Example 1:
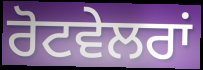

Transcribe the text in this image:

ਰੋਟਵੇਲਰਾਂ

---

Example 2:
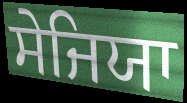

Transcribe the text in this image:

ਸੇਜਿਯਾ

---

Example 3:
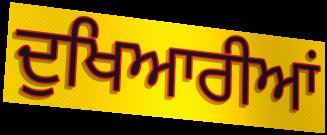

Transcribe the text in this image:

ਦੁਖਿਆਰੀਆਂ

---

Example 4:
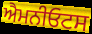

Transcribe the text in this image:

ਐਮਨੀਓਟਸ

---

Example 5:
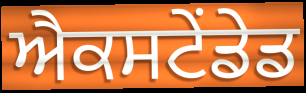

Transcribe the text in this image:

ਐਕਸਟੇਂਡੇਡ